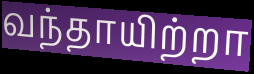
வந்தாயிற்றா